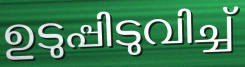
ഉടുപ്പിടുവിച്ച്